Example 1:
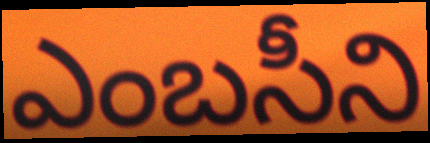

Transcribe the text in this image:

ఎంబసీని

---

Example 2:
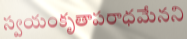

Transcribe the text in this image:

స్వయంకృతాపరాధమేనని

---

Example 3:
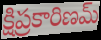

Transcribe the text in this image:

క్షిప్రకారిణమ్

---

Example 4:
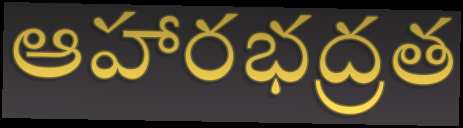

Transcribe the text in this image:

ఆహారభద్రత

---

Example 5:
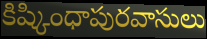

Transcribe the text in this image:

కిష్కింధాపురవాసులు